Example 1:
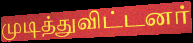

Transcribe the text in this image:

முடித்துவிட்டனர்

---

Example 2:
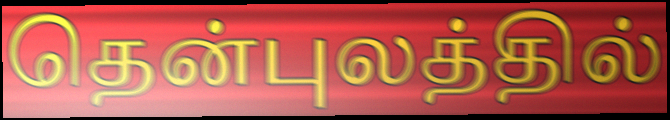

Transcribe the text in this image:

தென்புலத்தில்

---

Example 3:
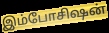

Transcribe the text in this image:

இம்போசிஷன்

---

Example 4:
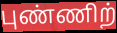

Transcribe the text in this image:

புண்ணிற்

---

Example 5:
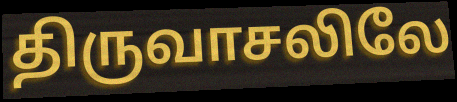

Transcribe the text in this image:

திருவாசலிலே